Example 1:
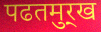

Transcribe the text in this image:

पढतमुर्ख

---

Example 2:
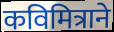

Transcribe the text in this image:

कविमित्राने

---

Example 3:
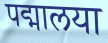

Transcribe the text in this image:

पद्मालया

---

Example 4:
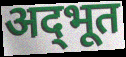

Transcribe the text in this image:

अद्‌भूत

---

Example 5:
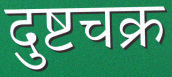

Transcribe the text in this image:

दुष्टचक्र